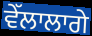
ਵੇੱਲਾਲਾਗੇ